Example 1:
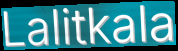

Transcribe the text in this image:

Lalitkala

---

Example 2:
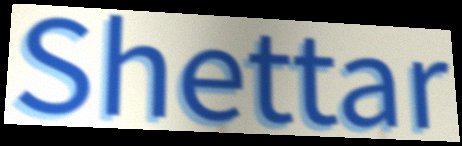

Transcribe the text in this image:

Shettar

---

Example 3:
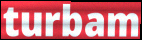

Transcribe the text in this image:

turbam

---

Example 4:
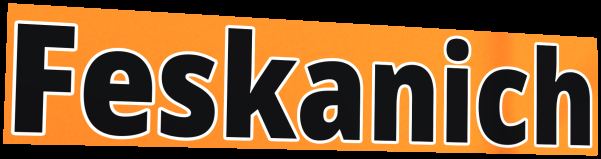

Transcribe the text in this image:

Feskanich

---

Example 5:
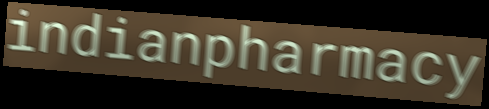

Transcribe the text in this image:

indianpharmacy